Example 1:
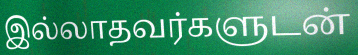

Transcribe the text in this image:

இல்லாதவர்களுடன்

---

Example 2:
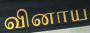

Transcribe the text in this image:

வினாய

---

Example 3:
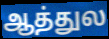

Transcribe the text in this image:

ஆத்துல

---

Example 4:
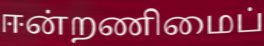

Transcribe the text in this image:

ஈன்றணிமைப்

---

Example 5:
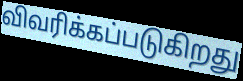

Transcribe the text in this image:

விவரிக்கப்படுகிறது